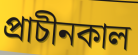
প্রাচীনকাল